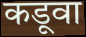
कडूवा